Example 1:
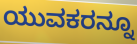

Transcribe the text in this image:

ಯುವಕರನ್ನೂ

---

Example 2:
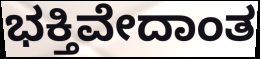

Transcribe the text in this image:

ಭಕ್ತಿವೇದಾಂತ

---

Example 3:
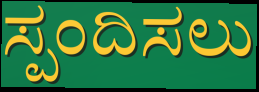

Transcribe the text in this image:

ಸ್ಪಂದಿಸಲು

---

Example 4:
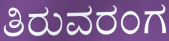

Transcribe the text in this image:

ತಿರುವರಂಗ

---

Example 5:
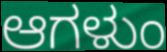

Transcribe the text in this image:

ಆಗಳುಂ